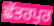
ਛੱਤਰਪੁਰ